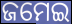
ଜମେଇ